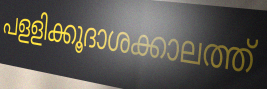
പളളിക്കൂദാശക്കാലത്ത്